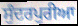
ਸੁੰਦਰਪੁਰੀਆ